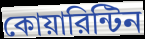
কোয়ারিন্টিন